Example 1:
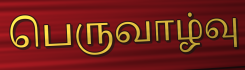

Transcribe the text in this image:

பெருவாழ்வு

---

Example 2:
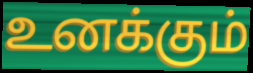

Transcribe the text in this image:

உனக்கும்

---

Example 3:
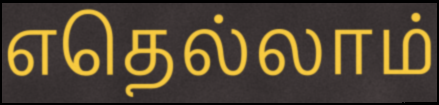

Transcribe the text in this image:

எதெல்லாம்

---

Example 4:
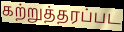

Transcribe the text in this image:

கற்றுத்தரப்பட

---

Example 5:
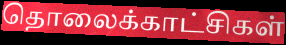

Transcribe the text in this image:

தொலைக்காட்சிகள்